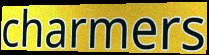
charmers